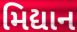
મિદ્યાન